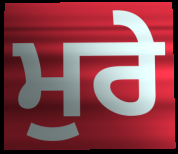
ਮੁਰੇ